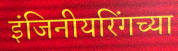
इंजिनीयरिंगच्या